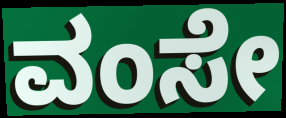
ವಂಸೇ